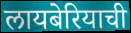
लायबेरियाची